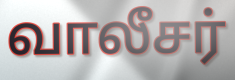
வாலீசர்